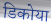
डिकोया